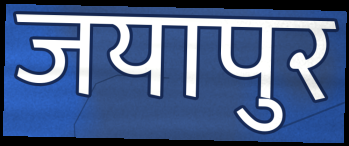
जयापुर